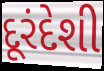
દૂરંદેશી